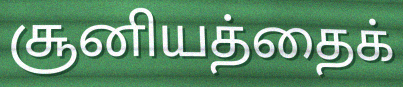
சூனியத்தைக்